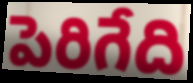
పెరిగేది